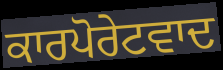
ਕਾਰਪੋਰੇਟਵਾਦ